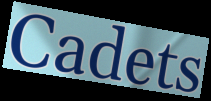
Cadets